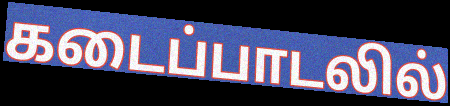
கடைப்பாடலில்